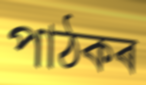
পাঠকৰ